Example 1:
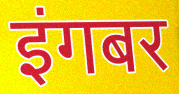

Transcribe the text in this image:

इंगबर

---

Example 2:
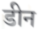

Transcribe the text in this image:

डीन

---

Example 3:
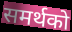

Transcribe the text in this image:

समर्थको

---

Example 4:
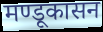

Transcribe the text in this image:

मण्डूकासन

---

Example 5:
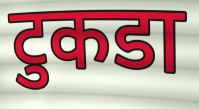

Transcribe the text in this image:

टुकडा